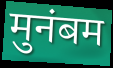
मुनंबम